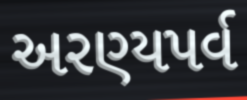
અરણ્યપર્વ